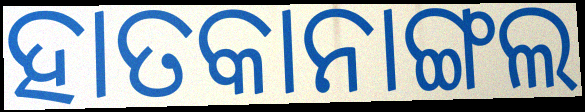
ହାତକାନାଙ୍ଗଲ